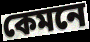
কেমনে